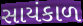
સાયંકાળ